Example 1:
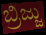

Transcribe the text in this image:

ಬ್ರಿಜ್ಜು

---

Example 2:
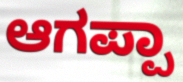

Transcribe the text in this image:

ಆಗಪ್ಪಾ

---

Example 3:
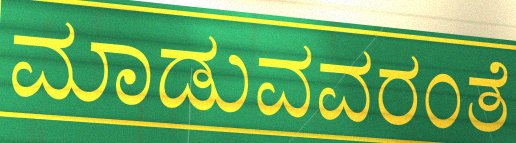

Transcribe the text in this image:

ಮಾಡುವವರಂತೆ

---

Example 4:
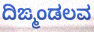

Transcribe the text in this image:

ದಿಙ್ಮಂಡಲವ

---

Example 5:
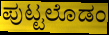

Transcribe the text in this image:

ಪುಟ್ಟಲೊಡಂ